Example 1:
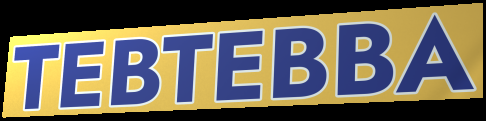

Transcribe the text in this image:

TEBTEBBA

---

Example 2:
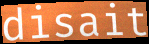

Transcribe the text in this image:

disait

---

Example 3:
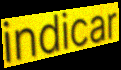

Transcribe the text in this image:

indicar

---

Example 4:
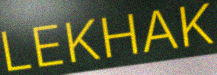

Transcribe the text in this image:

LEKHAK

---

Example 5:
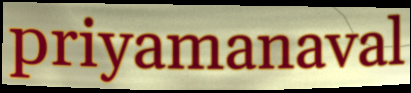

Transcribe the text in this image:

priyamanaval